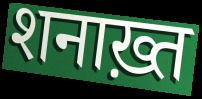
शनाख़्त